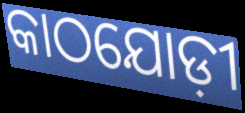
କାଠଯୋଡ଼ୀ